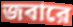
জবারে